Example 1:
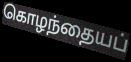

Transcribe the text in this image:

கொழந்தையப்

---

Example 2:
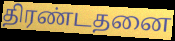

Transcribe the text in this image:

திரண்டதனை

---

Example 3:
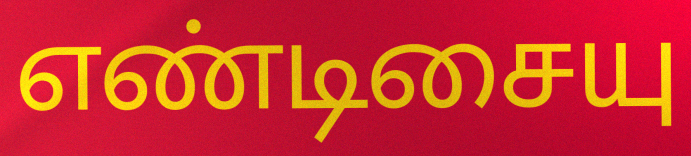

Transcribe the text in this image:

எண்டிசையு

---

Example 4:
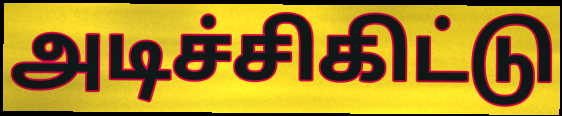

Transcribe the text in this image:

அடிச்சிகிட்டு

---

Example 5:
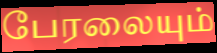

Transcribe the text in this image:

பேரலையும்